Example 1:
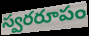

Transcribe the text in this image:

స్వరరూపం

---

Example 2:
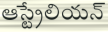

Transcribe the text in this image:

ఆస్ట్రేలియన్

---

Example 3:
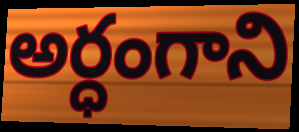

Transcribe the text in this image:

అర్ధంగాని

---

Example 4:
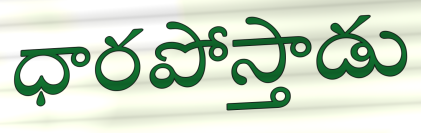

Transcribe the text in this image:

ధారపోస్తాడు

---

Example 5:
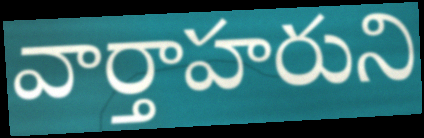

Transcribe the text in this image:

వార్తాహరుని